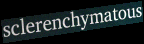
sclerenchymatous